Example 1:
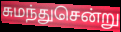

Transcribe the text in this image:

சுமந்துசென்று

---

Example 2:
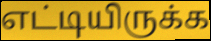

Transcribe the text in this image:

எட்டியிருக்க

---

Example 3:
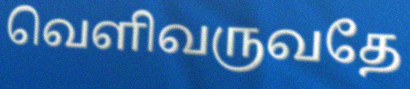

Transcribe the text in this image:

வெளிவருவதே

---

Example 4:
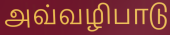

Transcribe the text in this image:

அவ்வழிபாடு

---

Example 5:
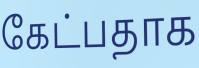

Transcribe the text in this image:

கேட்பதாக